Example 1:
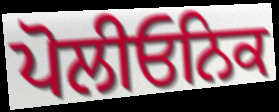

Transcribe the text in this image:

ਪੋਲੀਓਨਿਕ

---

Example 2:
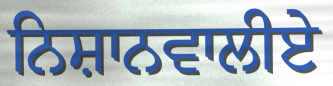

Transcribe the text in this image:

ਨਿਸ਼ਾਨਵਾਲੀਏ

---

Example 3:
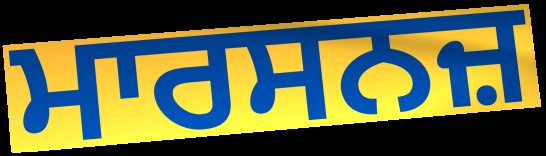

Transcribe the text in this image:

ਮਾਰਸਨਜ਼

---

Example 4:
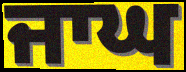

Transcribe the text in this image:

ਜਾਘ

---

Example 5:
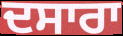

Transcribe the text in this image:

ਦਸਾਰਾ